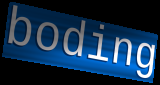
boding